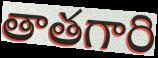
తాతగారి